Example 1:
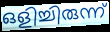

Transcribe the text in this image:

ഒളിച്ചിരുന്ന്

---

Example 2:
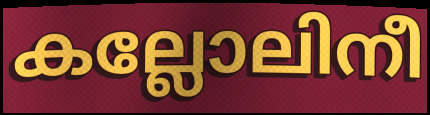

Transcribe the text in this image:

കല്ലോലിനീ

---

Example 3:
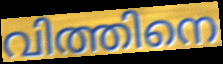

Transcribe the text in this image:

വിത്തിനെ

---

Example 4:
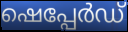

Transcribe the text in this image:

ഷെപ്പേർഡ്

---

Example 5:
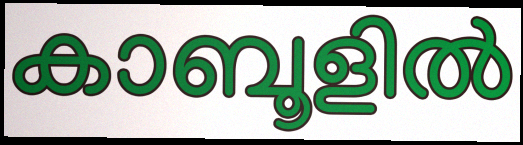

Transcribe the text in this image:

കാബൂളിൽ